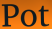
Pot